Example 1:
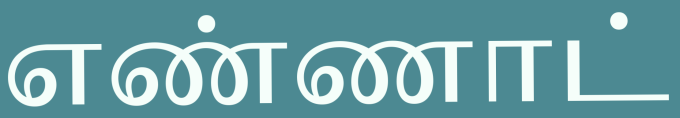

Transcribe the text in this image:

எண்ணாட்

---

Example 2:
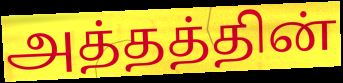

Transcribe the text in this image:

அத்தத்தின்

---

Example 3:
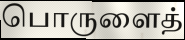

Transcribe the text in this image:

பொருளைத்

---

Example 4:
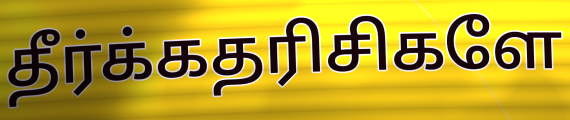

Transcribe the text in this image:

தீர்க்கதரிசிகளே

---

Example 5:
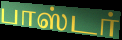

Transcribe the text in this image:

பாஸ்டர்